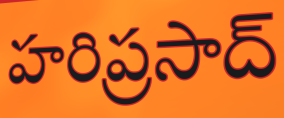
హరిప్రసాద్